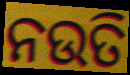
ନଉତି